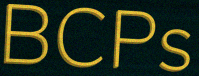
BCPs